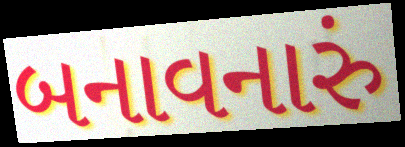
બનાવનારું